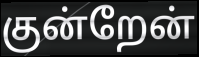
குன்றேன்